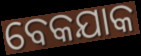
ବେକଯାକ